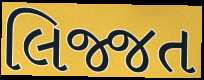
લિજ્જત